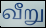
வீறு